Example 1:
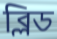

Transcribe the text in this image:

ব্লিড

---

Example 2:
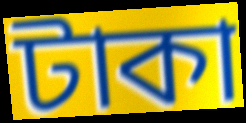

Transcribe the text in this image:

টাকা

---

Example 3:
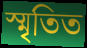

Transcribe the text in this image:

স্মৃতিত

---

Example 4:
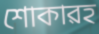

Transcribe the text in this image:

শোকাৱহ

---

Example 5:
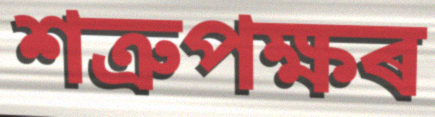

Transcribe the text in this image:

শত্ৰুপক্ষৰ